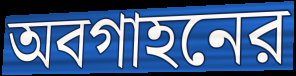
অবগাহনের